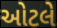
ઓટલે